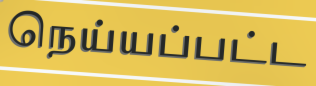
நெய்யப்பட்ட